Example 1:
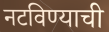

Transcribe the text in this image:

नटविण्याची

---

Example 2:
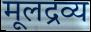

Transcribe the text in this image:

मूलद्रव्य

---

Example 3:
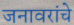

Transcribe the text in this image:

जनावरांचे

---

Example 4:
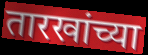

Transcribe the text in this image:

तारखांच्या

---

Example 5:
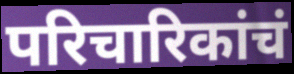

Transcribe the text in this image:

परिचारिकांचं